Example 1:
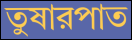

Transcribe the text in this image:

তুষারপাত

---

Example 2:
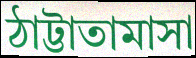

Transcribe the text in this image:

ঠাট্টাতামাসা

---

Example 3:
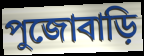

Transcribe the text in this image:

পুজোবাড়ি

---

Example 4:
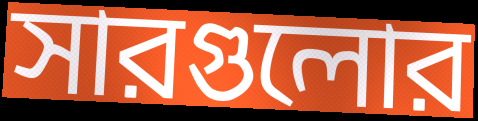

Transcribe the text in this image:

সারগুলোর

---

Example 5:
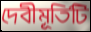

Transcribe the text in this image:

দেবীমূর্তিটি